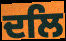
ਦਲਿ